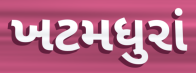
ખટમધુરાં